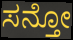
ಸನ್ತೋ